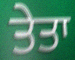
ਤੇਤਾ